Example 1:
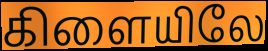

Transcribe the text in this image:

கிளையிலே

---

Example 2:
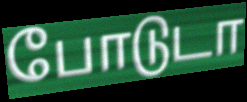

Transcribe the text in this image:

போடுடா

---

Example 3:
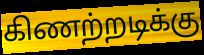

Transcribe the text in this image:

கிணற்றடிக்கு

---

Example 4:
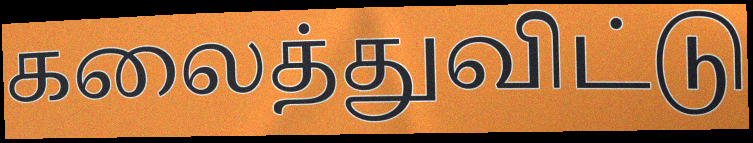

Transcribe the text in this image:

கலைத்துவிட்டு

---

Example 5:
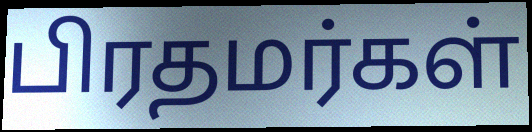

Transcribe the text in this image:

பிரதமர்கள்